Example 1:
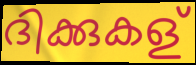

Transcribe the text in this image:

ദിക്കുകള്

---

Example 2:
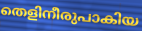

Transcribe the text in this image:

തെളിനീരുപാകിയ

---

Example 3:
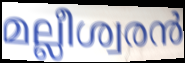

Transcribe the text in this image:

മല്ലീശ്വരൻ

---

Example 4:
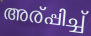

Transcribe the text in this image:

അര്പ്പിച്ച്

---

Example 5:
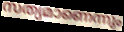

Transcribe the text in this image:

സത്യമാണെന്നും